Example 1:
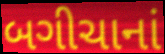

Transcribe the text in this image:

બગીચાનાં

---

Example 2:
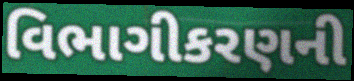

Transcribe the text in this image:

વિભાગીકરણની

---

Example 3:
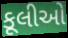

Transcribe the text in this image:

કૂલીઓ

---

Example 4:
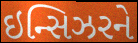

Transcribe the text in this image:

ઇન્સિઝરને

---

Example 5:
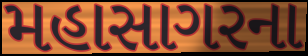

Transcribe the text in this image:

મહાસાગરના